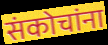
संकोचांना